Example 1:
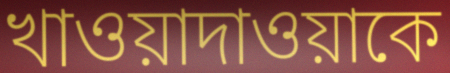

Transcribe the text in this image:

খাওয়াদাওয়াকে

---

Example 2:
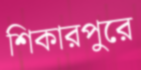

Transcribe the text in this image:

শিকারপুরে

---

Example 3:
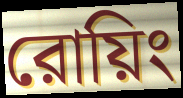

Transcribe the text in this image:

রোয়িং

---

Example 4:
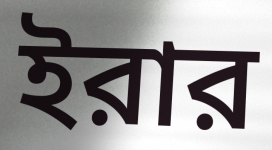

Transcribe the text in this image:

ইরার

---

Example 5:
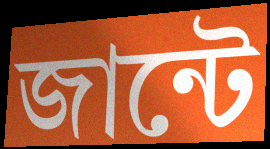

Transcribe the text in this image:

জান্টে